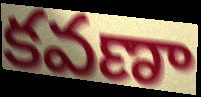
కవణా